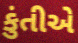
કુંતીએ